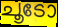
ചൂടോ